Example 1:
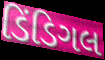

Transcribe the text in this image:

ડિંડિગલ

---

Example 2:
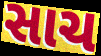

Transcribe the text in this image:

સાચ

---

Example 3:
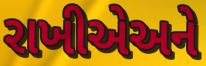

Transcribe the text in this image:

રાખીએઅને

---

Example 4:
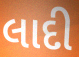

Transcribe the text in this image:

લાદી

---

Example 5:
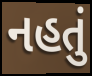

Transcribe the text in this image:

નહતું